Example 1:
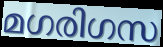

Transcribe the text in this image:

മഗരിഗസ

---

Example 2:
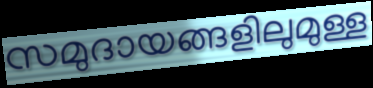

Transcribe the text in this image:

സമുദായങ്ങളിലുമുള്ള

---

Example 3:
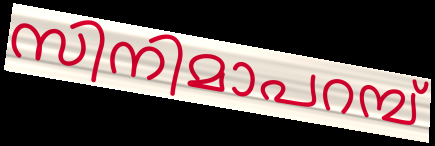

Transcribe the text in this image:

സിനിമാപറമ്പ്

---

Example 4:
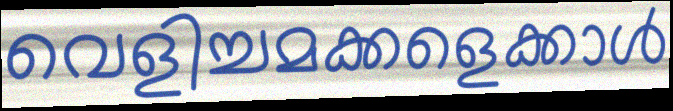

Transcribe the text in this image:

വെളിച്ചമക്കളെക്കാൾ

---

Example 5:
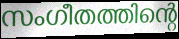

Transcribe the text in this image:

സംഗീതത്തിന്റെ